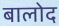
बालोद